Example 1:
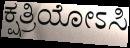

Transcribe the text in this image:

ಕ್ಷತ್ರಿಯೋಽಸಿ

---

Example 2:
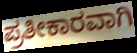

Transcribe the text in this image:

ಪ್ರತೀಕಾರವಾಗಿ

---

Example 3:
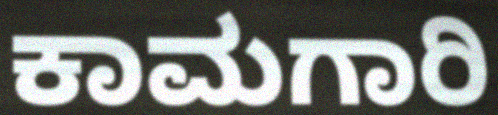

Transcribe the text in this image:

ಕಾಮಗಾರಿ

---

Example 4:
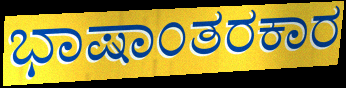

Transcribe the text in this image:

ಭಾಷಾಂತರಕಾರ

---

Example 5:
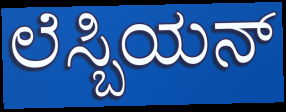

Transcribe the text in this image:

ಲೆಸ್ಬಿಯನ್